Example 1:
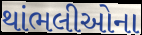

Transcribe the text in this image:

થાંભલીઓના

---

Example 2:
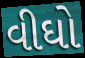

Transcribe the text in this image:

વીઘો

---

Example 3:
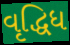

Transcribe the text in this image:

વૃદ્ધિધ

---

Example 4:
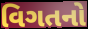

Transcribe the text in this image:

વિગતનો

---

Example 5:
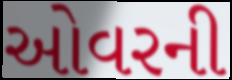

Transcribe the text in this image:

ઓવરની